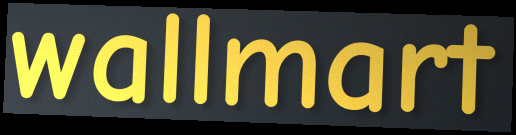
wallmart